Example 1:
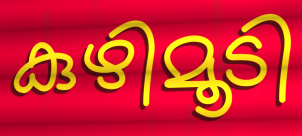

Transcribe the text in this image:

കുഴിമൂടി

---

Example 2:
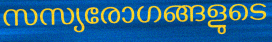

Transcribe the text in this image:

സസ്യരോഗങ്ങളുടെ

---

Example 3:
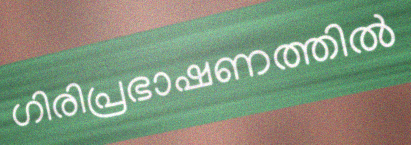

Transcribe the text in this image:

ഗിരിപ്രഭാഷണത്തിൽ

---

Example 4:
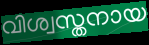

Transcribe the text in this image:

വിശ്വസ്തനായ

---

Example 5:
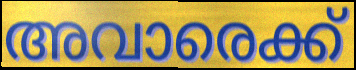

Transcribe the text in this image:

അവാരെക്ക്